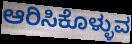
ಆರಿಸಿಕೊಳ್ಳುವ